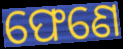
ଫେଣେ